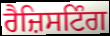
ਰੈਜ਼ਿਸਟਿੰਗ